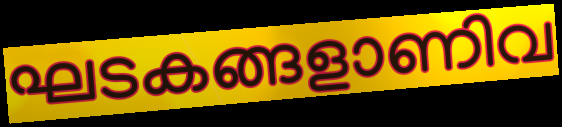
ഘടകങ്ങളാണിവ